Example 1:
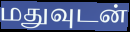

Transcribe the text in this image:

மதுவுடன்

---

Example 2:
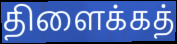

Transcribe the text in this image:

திளைக்கத்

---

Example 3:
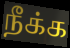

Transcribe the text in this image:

நீக்க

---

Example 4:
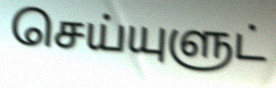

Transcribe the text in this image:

செய்யுளுட்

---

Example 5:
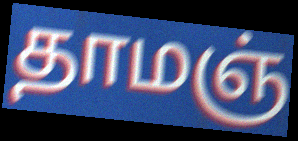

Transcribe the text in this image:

தாமஞ்